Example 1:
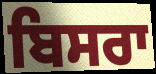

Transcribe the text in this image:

ਬਿਸਰਾ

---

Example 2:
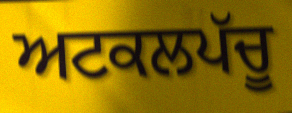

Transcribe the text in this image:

ਅਟਕਲਪੱਚੂ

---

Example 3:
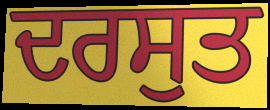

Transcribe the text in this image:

ਦਰਸੁਤ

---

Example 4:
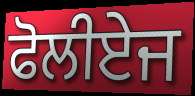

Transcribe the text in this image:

ਫੋਲੀਏਜ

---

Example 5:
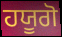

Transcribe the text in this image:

ਹਯੂਗੋ